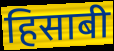
हिसाबी